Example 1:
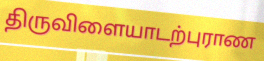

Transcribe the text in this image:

திருவிளையாடற்புராண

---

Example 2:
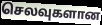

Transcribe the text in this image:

செலவுகளான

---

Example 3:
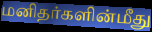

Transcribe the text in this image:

மனிதர்களின்மீது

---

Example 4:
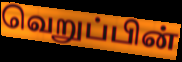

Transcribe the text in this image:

வெறுப்பின்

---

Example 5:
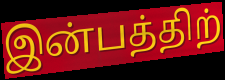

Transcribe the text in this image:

இன்பத்திற்